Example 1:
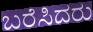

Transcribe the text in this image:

ಬರೆಸಿದರು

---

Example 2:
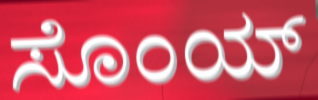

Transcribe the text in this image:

ಸೊಂಯ್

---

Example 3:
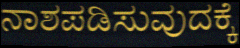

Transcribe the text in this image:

ನಾಶಪಡಿಸುವುದಕ್ಕೆ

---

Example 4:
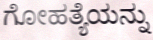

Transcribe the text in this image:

ಗೋಹತ್ಯೆಯನ್ನು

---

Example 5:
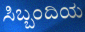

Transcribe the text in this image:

ಸಿಬ್ಬಂದಿಯ